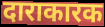
दाराकारक